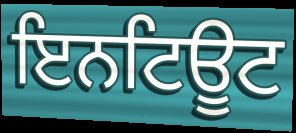
ਇਨਟਿਊਟ